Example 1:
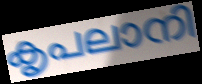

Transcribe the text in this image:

കൃപലാനി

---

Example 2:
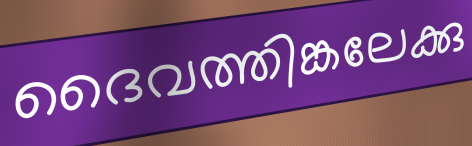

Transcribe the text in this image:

ദൈവത്തിങ്കലേക്കു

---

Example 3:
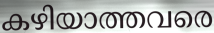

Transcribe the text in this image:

കഴിയാത്തവരെ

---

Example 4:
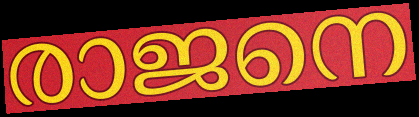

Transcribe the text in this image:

രാജനെ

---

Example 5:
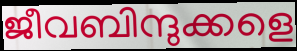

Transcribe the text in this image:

ജീവബിന്ദുക്കളെ